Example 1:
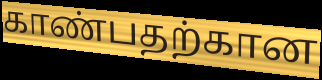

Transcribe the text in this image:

காண்பதற்கான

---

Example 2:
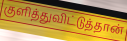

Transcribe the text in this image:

குளித்துவிட்டுத்தான்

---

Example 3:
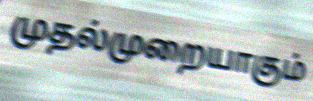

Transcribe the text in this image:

முதல்முறையாகும்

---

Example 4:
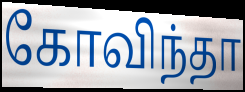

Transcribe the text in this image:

கோவிந்தா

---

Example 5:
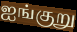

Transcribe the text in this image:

ஐங்குறு